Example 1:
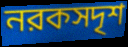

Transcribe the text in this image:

নরকসদৃশ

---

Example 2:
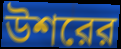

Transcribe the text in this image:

উশরের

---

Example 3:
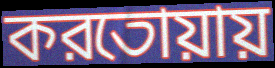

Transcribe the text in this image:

করতোয়ায়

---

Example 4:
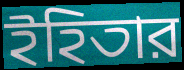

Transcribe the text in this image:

ইহিতার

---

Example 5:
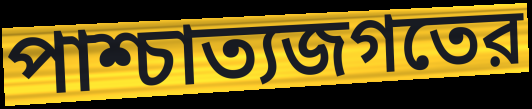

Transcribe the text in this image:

পাশ্চাত্যজগতের